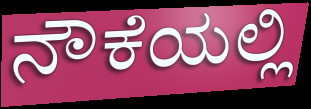
ನೌಕೆಯಲ್ಲಿ